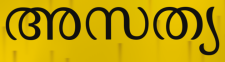
അസത്യ